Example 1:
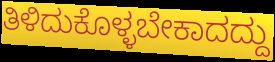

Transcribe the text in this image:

ತಿಳಿದುಕೊಳ್ಳಬೇಕಾದದ್ದು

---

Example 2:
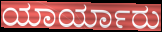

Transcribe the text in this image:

ಯಾರ್ಯಾರು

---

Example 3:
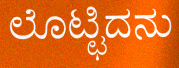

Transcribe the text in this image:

ಲೊಟ್ಟಿದನು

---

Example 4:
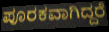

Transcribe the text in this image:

ಪೂರಕವಾಗಿದ್ದರೆ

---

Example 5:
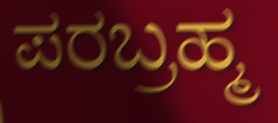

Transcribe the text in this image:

ಪರಬ್ರಹ್ಮ